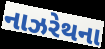
નાઝરેથના